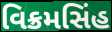
વિક્રમસિંહ